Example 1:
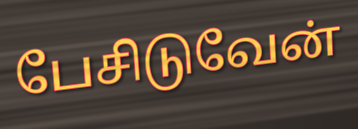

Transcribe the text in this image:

பேசிடுவேன்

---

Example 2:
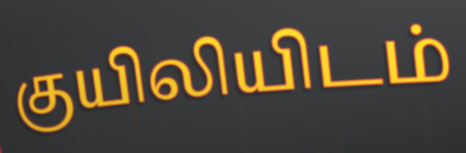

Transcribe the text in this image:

குயிலியிடம்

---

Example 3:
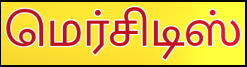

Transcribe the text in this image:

மெர்சிடிஸ்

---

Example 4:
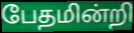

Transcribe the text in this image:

பேதமின்றி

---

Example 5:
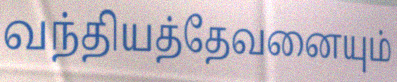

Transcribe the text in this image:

வந்தியத்தேவனையும்